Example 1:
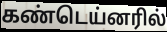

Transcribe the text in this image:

கண்டெய்னரில்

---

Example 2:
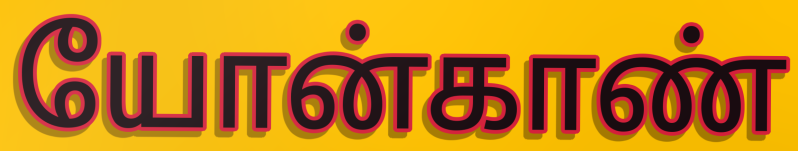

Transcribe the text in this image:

யோன்காண்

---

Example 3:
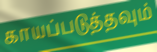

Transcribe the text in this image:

காயப்படுத்தவும்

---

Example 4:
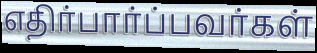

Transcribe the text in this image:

எதிர்பார்ப்பவர்கள்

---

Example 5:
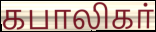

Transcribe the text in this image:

கபாலிகர்